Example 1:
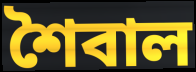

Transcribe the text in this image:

শৈবাল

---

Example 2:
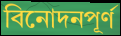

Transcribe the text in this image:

বিনোদনপূর্ণ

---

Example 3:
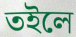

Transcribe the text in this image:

তইলে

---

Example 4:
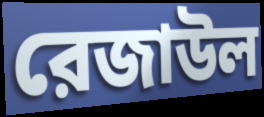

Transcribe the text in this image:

রেজাউল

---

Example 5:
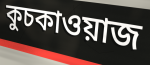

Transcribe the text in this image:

কুচকাওয়াজ